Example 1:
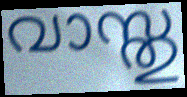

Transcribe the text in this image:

വാസ്തു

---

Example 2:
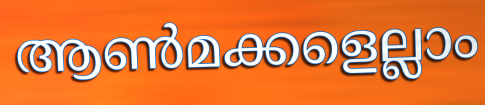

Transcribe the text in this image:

ആൺമക്കളെല്ലാം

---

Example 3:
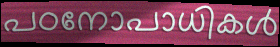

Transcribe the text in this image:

പഠനോപാധികൾ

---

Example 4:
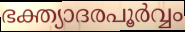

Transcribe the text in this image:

ഭക്ത്യാദരപൂർവ്വം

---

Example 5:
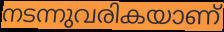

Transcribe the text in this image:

നടന്നുവരികയാണ്